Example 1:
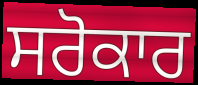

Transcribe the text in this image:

ਸਰੋਕਾਰ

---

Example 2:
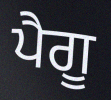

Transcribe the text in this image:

ਪੈਗੂ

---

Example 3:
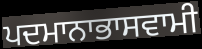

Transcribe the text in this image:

ਪਦਮਾਨਾਭਾਸਵਾਮੀ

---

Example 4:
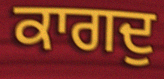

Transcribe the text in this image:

ਕਾਗਦੁ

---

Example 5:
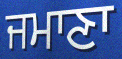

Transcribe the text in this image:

ਜਮਾਣਾ